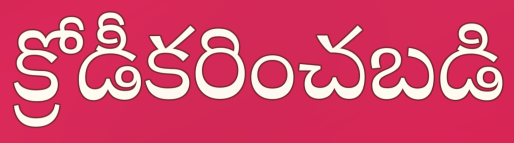
క్రోడీకరించబడి